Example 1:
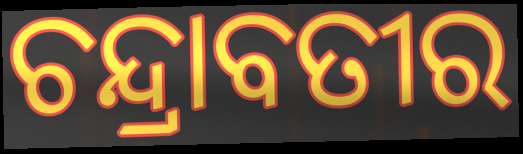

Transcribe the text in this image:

ଚନ୍ଦ୍ରାବତୀର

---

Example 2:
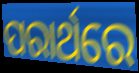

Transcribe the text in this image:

ପରାର୍ଥରେ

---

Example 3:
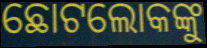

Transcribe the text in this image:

ଛୋଟଲୋକଙ୍କୁ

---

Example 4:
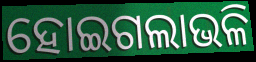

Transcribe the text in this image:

ହୋଇଗଲାଭଳି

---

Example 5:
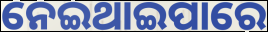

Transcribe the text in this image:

ନେଇଥାଇପାରେ